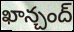
ఖాన్చంద్